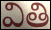
వితి